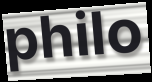
philo